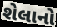
શેલાનો